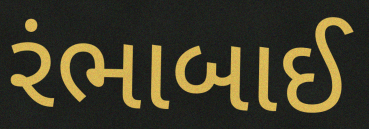
રંભાબાઈ